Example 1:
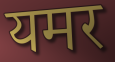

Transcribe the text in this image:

यमर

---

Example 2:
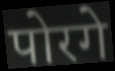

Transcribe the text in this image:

पोरगे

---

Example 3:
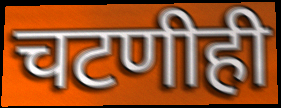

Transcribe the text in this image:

चटणीही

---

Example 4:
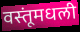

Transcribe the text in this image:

वस्तूंमधली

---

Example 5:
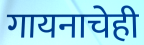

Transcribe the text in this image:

गायनाचेही